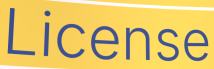
License